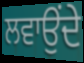
ਲਵਾਉਂਦੇ